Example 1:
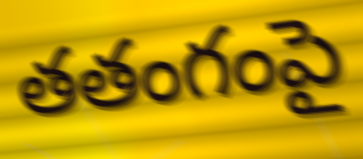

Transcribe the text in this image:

తతంగంపై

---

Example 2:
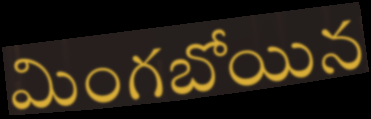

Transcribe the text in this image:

మింగబోయిన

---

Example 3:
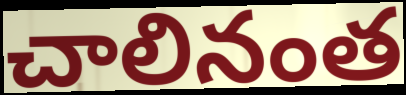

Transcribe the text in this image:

చాలినంత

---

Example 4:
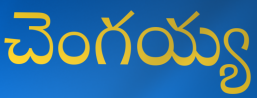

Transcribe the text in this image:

చెంగయ్య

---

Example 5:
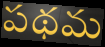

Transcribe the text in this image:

పథమ